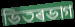
ভিতৰভাগ